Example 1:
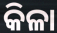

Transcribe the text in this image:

କିଳା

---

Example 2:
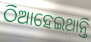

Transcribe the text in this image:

ଠିଆହେଇଥାନ୍ତି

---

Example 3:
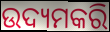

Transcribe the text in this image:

ଉଦ୍ୟମକରି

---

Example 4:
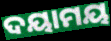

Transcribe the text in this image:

ଦୟାମୟ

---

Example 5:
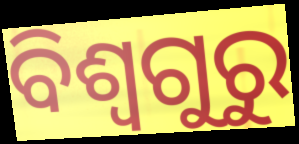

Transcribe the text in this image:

ବିଶ୍ୱଗୁରୁ